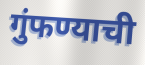
गुंफण्याची